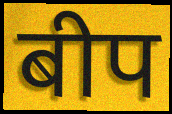
बीप